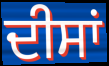
ਦੀਸਾਂ